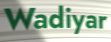
Wadiyar